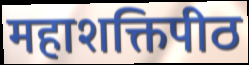
महाशक्तिपीठ